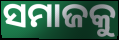
ସମାଜକୁ